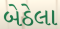
બેઠેલા